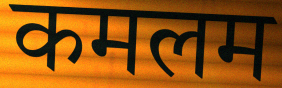
कमलम